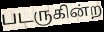
படருகின்ற